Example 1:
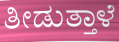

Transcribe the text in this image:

ತೀಡುತ್ತಾಳೆ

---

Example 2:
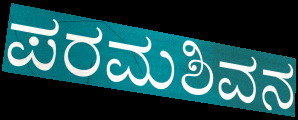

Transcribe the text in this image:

ಪರಮಶಿವನ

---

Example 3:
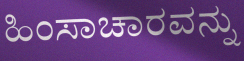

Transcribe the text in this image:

ಹಿಂಸಾಚಾರವನ್ನು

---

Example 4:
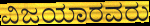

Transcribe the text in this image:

ವಿಜಯಾರವರು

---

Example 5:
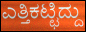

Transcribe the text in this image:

ಎತ್ತಿಕಟ್ಟಿದ್ದು